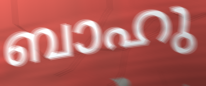
ബാഹു